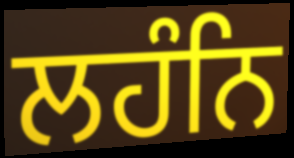
ਲਹੰਨਿ